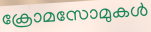
ക്രോമസോമുകൾ